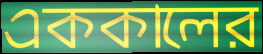
এককালের